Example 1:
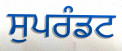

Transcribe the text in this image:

ਸੁਪਰੰਡਟ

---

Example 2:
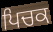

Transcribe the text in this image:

ਪਿਚਕ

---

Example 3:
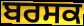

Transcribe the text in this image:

ਬਰਸਕ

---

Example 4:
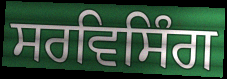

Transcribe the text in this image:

ਸਰਵਿਸਿੰਗ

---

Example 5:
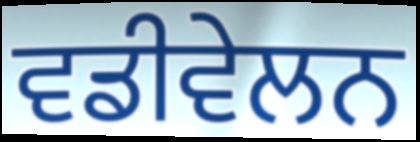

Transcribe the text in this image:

ਵਡੀਵੇਲਨ